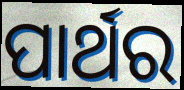
ପାର୍ଥର